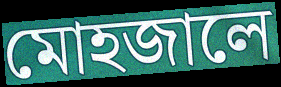
মোহজালে